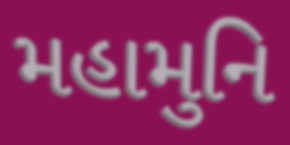
મહામુનિ